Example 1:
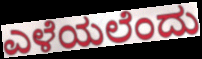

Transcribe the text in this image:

ಎಳೆಯಲೆಂದು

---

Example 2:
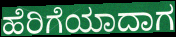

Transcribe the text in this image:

ಹೆರಿಗೆಯಾದಾಗ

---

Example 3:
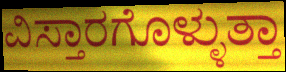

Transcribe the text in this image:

ವಿಸ್ತಾರಗೊಳ್ಳುತ್ತಾ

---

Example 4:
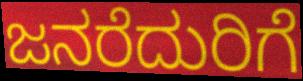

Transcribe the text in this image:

ಜನರೆದುರಿಗೆ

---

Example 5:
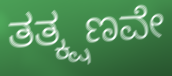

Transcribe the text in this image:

ತತ್ಕ್ಷಣವೇ